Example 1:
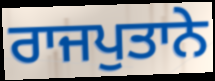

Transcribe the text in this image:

ਰਾਜਪੁਤਾਨੇ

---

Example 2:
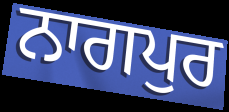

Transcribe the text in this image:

ਨਾਗਪੁਰ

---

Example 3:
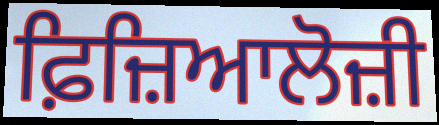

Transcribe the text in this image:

ਫ਼ਿਜ਼ਿਆਲੋਜ਼ੀ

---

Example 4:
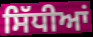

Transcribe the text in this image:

ਸਿੱਧੀਆਂ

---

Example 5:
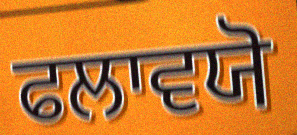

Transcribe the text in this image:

ਫਲਾਵਯੋ